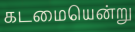
கடமையென்று